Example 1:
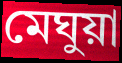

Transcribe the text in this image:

মেঘুয়া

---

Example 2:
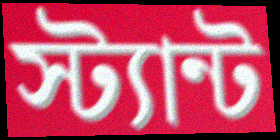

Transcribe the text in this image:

স্ট্যান্ট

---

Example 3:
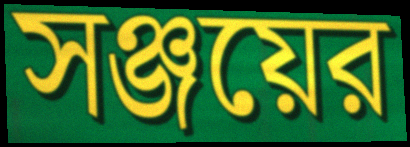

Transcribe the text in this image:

সঞ্জয়ের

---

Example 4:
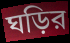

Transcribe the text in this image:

ঘড়ির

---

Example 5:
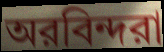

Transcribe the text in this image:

অরবিন্দরা